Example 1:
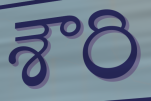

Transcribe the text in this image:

శౌరి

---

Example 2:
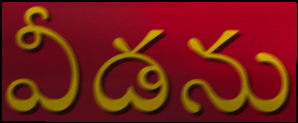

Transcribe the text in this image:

వీడను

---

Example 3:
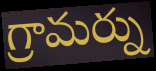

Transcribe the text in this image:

గ్రామర్ను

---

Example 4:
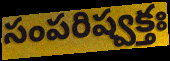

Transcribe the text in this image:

సంపరిష్వక్తః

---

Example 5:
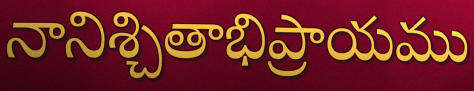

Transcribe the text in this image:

నానిశ్చితాభిప్రాయము